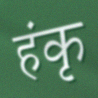
हंकृ